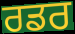
ਰਡਰ